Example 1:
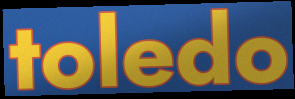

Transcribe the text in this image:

toledo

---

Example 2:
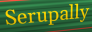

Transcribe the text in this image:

Serupally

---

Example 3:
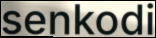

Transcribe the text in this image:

senkodi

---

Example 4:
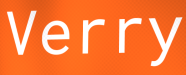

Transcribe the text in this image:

Verry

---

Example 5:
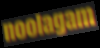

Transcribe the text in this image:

noolagam